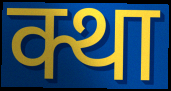
क्था